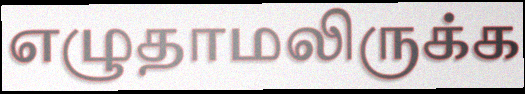
எழுதாமலிருக்க